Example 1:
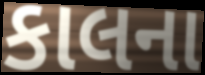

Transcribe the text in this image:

કાલના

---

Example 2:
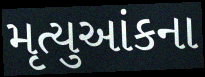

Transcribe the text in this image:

મૃત્યુઆંકના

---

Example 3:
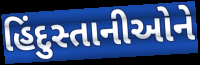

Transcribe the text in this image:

હિંદુસ્તાનીઓને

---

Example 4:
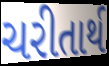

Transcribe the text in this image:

ચરીતાર્થ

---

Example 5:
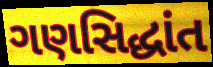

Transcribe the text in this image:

ગણસિદ્ધાંત